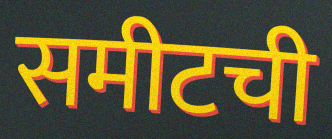
समीटची